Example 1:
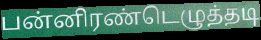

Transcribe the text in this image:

பன்னிரண்டெழுத்தடி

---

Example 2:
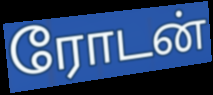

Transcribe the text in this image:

ரோடன்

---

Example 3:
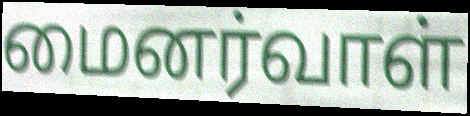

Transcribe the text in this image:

மைனர்வாள்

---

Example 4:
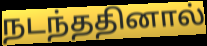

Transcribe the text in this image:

நடந்ததினால்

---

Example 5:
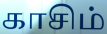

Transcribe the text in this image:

காசிம்